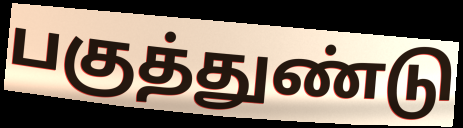
பகுத்துண்டு